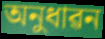
অনুধাৱন